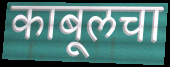
काबूलचा